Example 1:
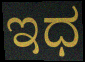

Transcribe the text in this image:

ಇಧ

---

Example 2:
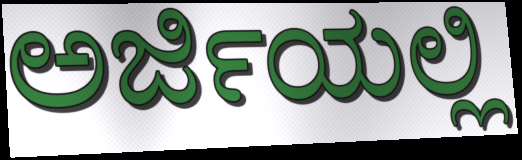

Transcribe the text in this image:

ಅರ್ಜಿಯಲ್ಲಿ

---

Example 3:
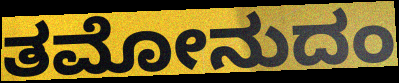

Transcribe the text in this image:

ತಮೋನುದಂ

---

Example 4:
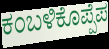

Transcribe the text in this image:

ಕಂಬಳಿಕೊಪ್ಪೆಪ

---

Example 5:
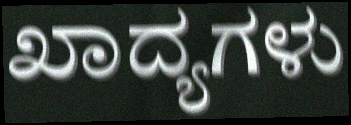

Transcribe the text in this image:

ಖಾದ್ಯಗಳು